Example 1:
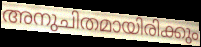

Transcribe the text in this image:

അനുചിതമായിരിക്കും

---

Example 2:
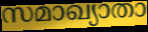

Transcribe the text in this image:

സമാഖ്യാതാ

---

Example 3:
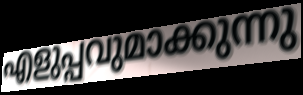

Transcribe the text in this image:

എളുപ്പവുമാക്കുന്നു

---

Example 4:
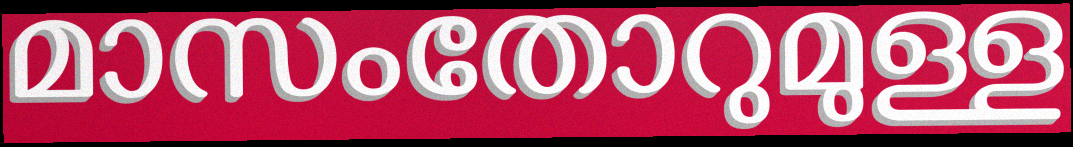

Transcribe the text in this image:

മാസംതോറുമുള്ള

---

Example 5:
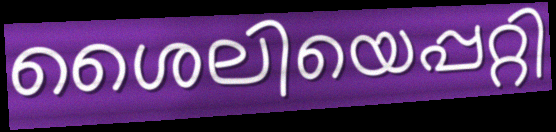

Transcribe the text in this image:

ശൈലിയെപ്പറ്റി